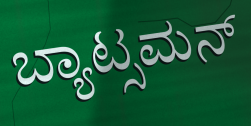
ಬ್ಯಾಟ್ಸಮನ್